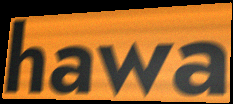
hawa